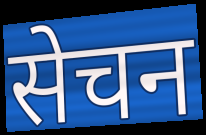
सेचन